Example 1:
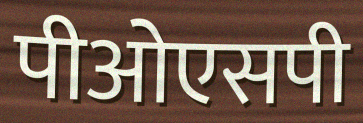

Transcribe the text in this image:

पीओएसपी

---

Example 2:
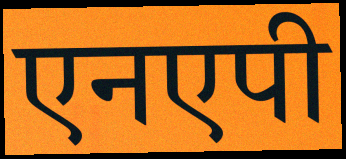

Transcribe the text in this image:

एनएपी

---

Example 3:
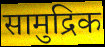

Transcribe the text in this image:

सामुद्रिक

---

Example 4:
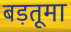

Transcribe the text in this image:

बड़तूमा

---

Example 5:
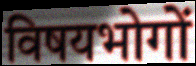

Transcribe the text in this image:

विषयभोगों